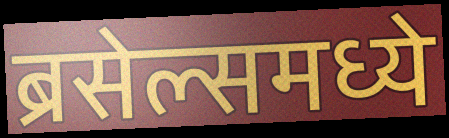
ब्रसेल्समध्ये